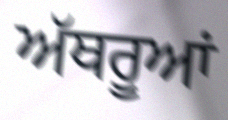
ਅੱਥਰੂਆਂ